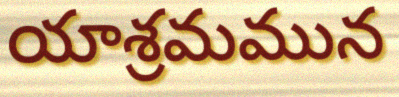
యాశ్రమమున